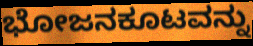
ಭೋಜನಕೂಟವನ್ನು